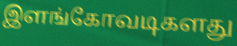
இளங்கோவடிகளது